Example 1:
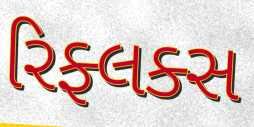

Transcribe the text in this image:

રિફ્લક્સ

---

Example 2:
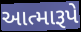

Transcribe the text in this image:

આત્મારૂપે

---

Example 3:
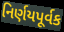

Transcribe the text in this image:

નિર્ણયપૂર્વક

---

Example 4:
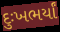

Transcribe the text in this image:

દુઃખભર્યાં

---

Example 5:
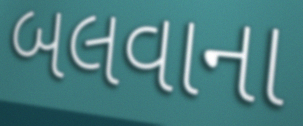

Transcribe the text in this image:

બલવાના